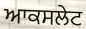
ਆਕਸਲੇਟ